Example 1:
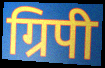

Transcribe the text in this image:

ग्रिपी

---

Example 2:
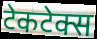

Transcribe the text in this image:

टेकटेक्स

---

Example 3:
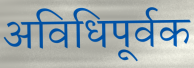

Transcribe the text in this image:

अविधिपूर्वक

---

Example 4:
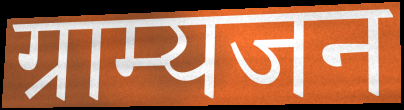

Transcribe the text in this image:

ग्राम्यजन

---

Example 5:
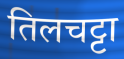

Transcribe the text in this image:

तिलचट्टा